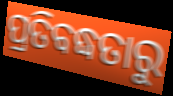
ପ୍ରତିବଦ୍ଧତାରୁ